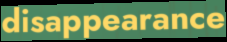
disappearance